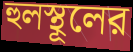
হুলস্থূলের